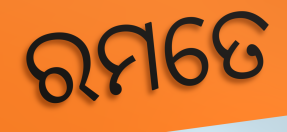
ରମତେ